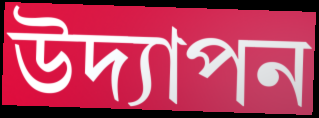
উদ্যাপন